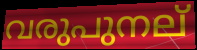
വരുപുനല്